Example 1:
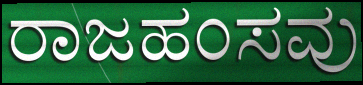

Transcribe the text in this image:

ರಾಜಹಂಸವು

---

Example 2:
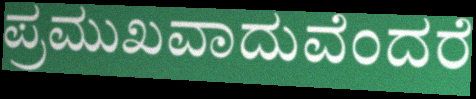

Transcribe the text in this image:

ಪ್ರಮುಖವಾದುವೆಂದರೆ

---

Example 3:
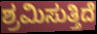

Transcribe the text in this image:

ಶ್ರಮಿಸುತ್ತಿದೆ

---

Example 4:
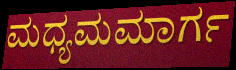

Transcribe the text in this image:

ಮಧ್ಯಮಮಾರ್ಗ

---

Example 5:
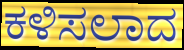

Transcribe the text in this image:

ಕಳಿಸಲಾದ